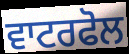
ਵਾਟਰਫੋਲ